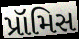
પ્રૉમિસ